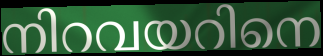
നിറവയറിനെ